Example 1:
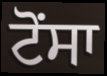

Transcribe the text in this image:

ਟੋਂਸਾ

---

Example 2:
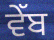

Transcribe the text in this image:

ਵੇੱਬ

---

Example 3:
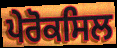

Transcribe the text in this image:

ਪੇਰੋਕਸਿਲ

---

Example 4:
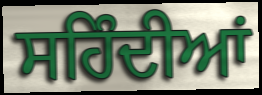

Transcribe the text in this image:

ਸਹਿੰਦੀਆਂ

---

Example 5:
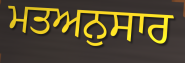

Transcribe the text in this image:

ਮਤਅਨੁਸਾਰ